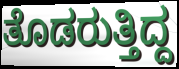
ತೊಡರುತ್ತಿದ್ದ